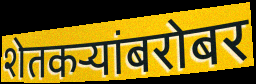
शेतकर्‍यांबरोबर